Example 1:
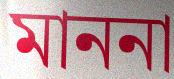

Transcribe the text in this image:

মাননা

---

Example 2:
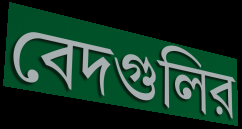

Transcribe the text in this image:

বেদগুলির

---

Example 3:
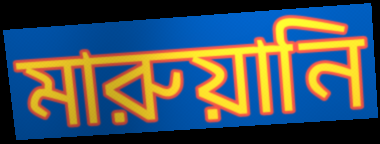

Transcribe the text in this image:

মারুয়ানি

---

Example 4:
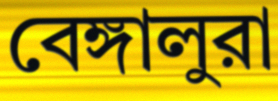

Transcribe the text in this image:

বেঙ্গালুরা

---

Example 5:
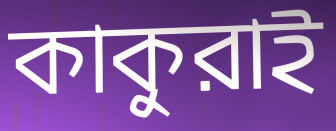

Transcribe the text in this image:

কাকুরাই